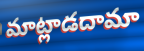
మాట్లాడదామా